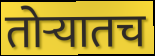
तोऱ्यातच